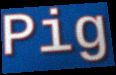
Pig